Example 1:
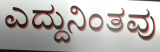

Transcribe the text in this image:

ಎದ್ದುನಿಂತವು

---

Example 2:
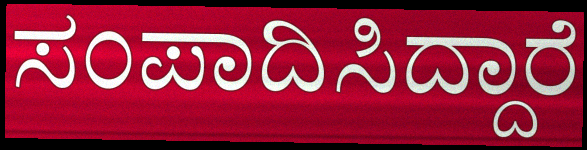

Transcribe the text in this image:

ಸಂಪಾದಿಸಿದ್ದಾರೆ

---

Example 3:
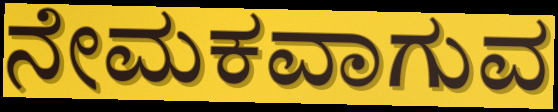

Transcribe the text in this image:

ನೇಮಕವಾಗುವ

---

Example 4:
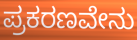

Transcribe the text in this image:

ಪ್ರಕರಣವೇನು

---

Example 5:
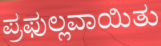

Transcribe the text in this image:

ಪ್ರಫುಲ್ಲವಾಯಿತು